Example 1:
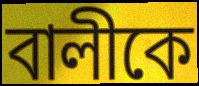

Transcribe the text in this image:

বালীকে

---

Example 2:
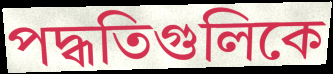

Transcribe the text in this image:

পদ্ধতিগুলিকে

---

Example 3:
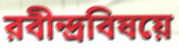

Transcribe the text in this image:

রবীন্দ্রবিষয়ে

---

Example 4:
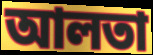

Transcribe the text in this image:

আলতা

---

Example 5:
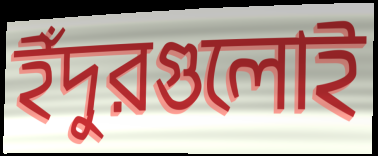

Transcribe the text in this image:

ইঁদুরগুলোই